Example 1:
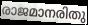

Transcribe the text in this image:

രാജമാനരിതു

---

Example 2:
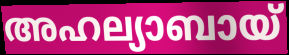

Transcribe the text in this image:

അഹല്യാബായ്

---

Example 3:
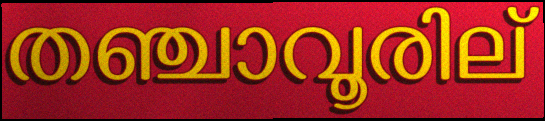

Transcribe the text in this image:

തഞ്ചാവൂരില്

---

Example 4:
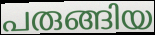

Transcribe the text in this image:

പരുങ്ങിയ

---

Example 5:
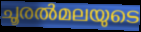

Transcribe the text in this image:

ചൂരൽമലയുടെ